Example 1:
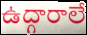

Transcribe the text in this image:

ఉద్గారాలే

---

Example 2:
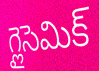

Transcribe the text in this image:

గ్లైసెమిక్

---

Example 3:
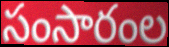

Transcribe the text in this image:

సంసారంల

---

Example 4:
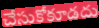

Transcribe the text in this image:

చేసుకోకూడదు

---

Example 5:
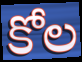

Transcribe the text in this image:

కోల